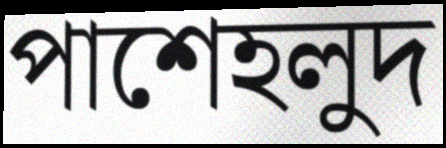
পাশেহলুদ